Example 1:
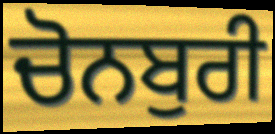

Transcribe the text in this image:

ਚੋਨਬੁਰੀ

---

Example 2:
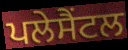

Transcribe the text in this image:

ਪਲੇਸੈਂਟਲ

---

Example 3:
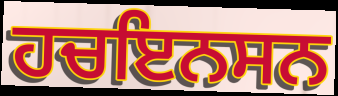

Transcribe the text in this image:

ਹਚਇਨਸਨ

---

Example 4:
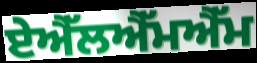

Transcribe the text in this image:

ਏਐੱਲਐੱਮਐੱਮ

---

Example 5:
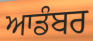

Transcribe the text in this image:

ਆਡੰਬਰ